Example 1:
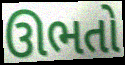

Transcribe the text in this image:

ઊભતો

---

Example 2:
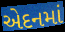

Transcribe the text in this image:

એદનમાં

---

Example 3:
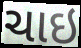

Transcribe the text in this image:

ચાઇ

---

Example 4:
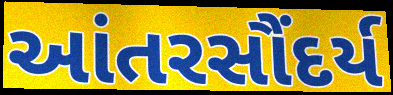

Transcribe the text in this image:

આંતરસૌંદર્ય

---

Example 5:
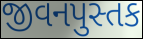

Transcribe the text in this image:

જીવનપુસ્તક